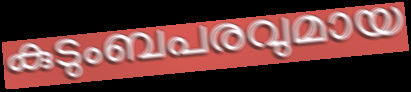
കുടുംബപരവുമായ